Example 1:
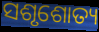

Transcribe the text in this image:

ସଶୃଶୋତ୍ୟ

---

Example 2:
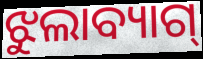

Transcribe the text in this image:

ଝୁଲାବ୍ୟାଗ୍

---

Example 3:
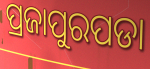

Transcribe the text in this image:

ପ୍ରଜାପୁରପଡା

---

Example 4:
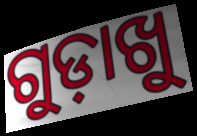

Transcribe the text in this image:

ଗୁଡ଼ାଖୁ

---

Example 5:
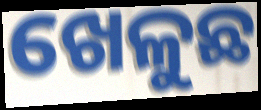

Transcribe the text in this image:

ଖେଳୁଛ